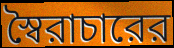
স্বৈরাচারের